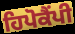
ਹਿਪੋਕੈਂਪੀ